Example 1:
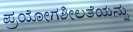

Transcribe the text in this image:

ಪ್ರಯೋಗಶೀಲತೆಯನ್ನು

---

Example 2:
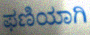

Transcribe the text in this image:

ಫಣಿಯಾಗಿ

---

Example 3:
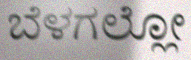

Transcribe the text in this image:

ಬೆಳಗಲ್ಲೋ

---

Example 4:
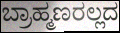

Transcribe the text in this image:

ಬ್ರಾಹ್ಮಣರಲ್ಲದ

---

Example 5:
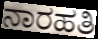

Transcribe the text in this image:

ನಾರಹತಿ